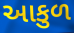
આકુળ